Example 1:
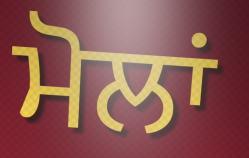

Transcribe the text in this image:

ਮੋਲਾਂ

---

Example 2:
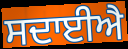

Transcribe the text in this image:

ਸਦਾਈਐ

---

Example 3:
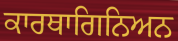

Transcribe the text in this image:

ਕਾਰਥਾਗਿਨਿਅਨ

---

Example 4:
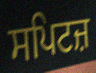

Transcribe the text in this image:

ਸਪਿਟਜ਼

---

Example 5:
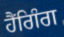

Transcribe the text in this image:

ਹੈਂਗਿੰਗ